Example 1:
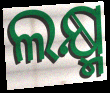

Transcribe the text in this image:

ଲକ୍ଷ୍ମ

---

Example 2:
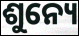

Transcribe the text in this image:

ଶୁନ୍ୟେ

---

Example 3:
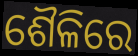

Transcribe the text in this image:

ଶୈଳିରେ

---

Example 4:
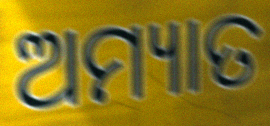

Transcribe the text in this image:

ଅମ୍ୟାତ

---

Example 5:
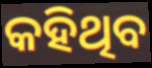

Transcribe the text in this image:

କହିଥିବ